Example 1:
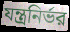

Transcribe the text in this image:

যন্ত্রনির্ভর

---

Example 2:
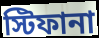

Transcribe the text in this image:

স্টিফানা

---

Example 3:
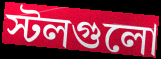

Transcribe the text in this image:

স্টলগুলো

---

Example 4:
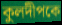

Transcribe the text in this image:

কুলদীপকে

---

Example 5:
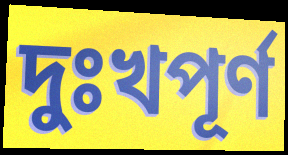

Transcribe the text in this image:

দুঃখপূর্ণ